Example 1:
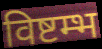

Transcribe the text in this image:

विष्टम्भ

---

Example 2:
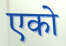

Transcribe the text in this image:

एको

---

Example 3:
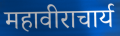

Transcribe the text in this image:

महावीराचार्य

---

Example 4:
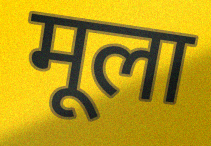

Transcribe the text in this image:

मूला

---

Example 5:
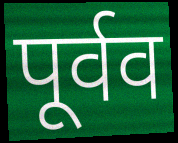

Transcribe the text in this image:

पूर्वव